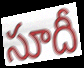
సూదీ